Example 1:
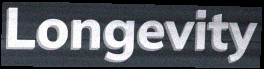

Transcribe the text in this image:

Longevity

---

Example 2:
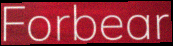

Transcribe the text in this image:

Forbear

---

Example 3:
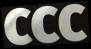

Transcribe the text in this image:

ccc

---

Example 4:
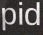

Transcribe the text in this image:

pid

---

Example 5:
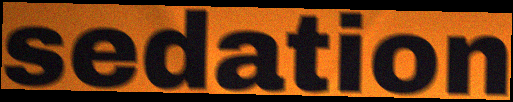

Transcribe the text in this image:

sedation